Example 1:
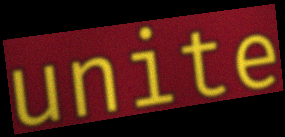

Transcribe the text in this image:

unite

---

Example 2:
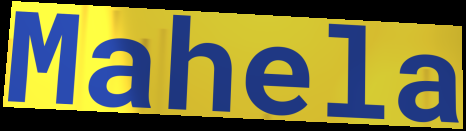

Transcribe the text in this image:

Mahela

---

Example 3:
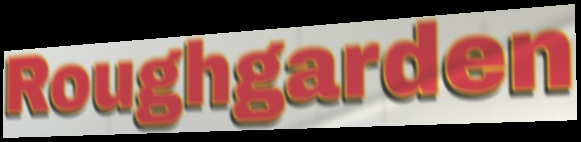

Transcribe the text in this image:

Roughgarden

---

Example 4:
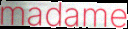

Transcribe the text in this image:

madame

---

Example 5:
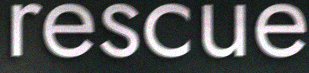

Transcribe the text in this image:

rescue